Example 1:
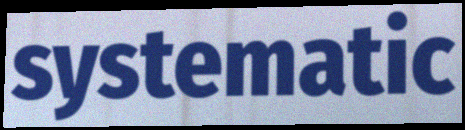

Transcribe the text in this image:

systematic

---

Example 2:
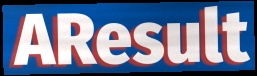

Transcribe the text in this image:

AResult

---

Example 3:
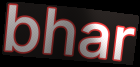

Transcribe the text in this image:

bhar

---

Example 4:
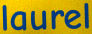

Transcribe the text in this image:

laurel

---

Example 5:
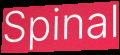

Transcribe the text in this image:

Spinal